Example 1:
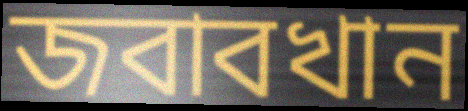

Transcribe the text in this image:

জবাবখান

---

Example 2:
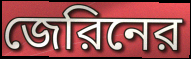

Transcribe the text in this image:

জেরিনের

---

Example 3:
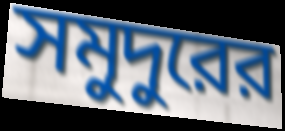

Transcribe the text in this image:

সমুদুরের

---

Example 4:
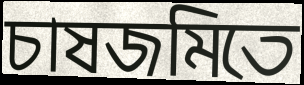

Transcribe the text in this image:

চাষজমিতে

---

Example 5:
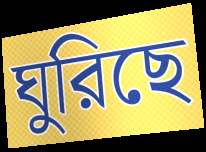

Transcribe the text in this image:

ঘুরিছে